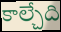
కాల్చేది